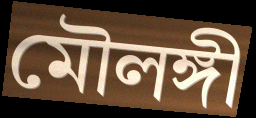
মৌলঙ্গী